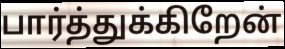
பார்த்துக்கிறேன்